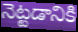
నెట్టడానికి